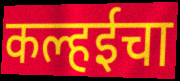
कल्हईचा